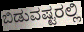
ಬಿಡುವಷ್ಟರಲ್ಲಿ